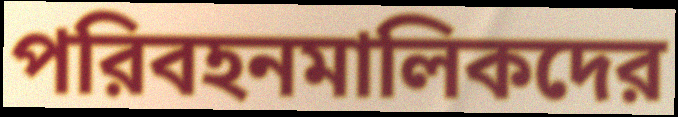
পরিবহনমালিকদের